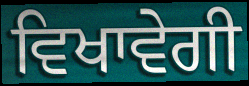
ਵਿਖਾਵੇਗੀ